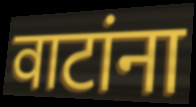
वाटांना